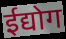
ईद्योग